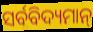
ସର୍ବବିଦ୍ୟମାନ୍